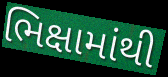
ભિક્ષામાંથી